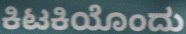
ಕಿಟಕಿಯೊಂದು